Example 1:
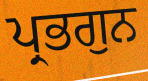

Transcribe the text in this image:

ਪ੍ਰਭਗੁਨ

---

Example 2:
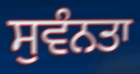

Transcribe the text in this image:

ਸੁਵੰਨਤਾ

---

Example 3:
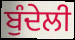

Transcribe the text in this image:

ਬੁੰਦੇਲੀ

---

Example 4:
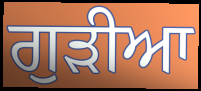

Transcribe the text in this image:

ਗੁੜੀਆ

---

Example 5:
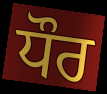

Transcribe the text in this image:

ਧੌਰ